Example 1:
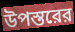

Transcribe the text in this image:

উপস্তরের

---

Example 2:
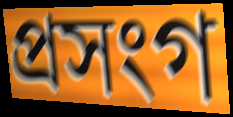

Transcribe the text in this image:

প্রসংগ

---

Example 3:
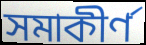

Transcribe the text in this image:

সমাকীর্ণ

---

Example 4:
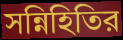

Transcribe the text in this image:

সন্নিহিতির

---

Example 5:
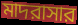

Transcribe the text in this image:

মাদরাসার